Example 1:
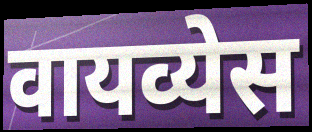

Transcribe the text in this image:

वायव्येस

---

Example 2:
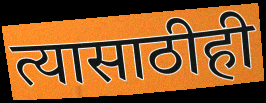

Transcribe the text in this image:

त्यासाठीही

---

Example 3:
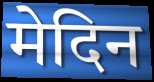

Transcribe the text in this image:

मेदिन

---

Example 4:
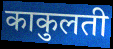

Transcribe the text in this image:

काकुलती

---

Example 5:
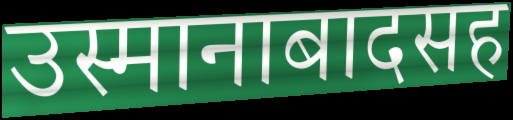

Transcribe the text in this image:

उस्मानाबादसह